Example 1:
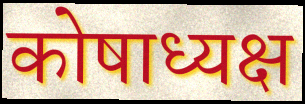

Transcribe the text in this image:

कोषाध्यक्ष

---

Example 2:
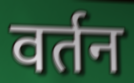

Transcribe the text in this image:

वर्तन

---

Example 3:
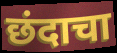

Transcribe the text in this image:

छंदाचा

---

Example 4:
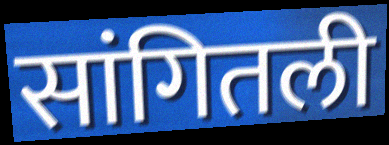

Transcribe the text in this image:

सांगितली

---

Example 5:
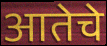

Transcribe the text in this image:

आतेचे